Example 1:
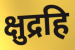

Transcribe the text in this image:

क्षुद्रहि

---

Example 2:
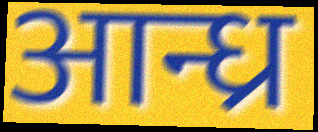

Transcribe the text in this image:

आन्ध्र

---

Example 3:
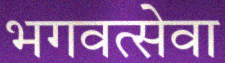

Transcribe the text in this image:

भगवत्सेवा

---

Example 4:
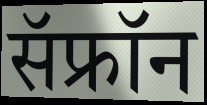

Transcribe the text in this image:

सॅफ्रॉन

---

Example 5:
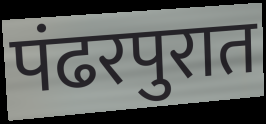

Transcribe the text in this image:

पंढरपुरात